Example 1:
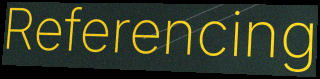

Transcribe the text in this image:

Referencing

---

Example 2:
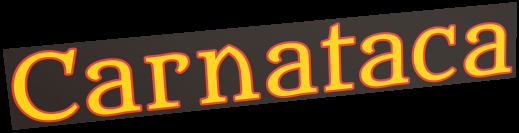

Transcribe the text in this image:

Carnataca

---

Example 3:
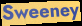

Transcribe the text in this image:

Sweeney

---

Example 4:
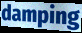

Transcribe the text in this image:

damping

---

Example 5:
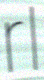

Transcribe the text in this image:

rl